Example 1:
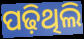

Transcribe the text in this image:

ପଢ଼ିଥିଲି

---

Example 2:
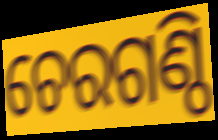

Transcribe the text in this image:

ଚେରଗଣ୍ଠି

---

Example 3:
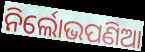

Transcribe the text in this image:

ନିର୍ଲୋଭପଣିଆ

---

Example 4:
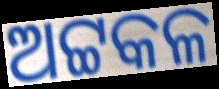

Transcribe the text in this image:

ଅଟ୍ଟକଳ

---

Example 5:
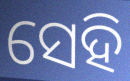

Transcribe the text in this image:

ସେହି